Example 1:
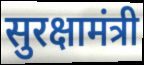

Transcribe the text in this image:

सुरक्षामंत्री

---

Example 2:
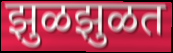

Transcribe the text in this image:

झुळझुळत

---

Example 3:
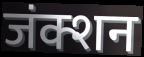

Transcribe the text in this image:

जंक्शन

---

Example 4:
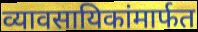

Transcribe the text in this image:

व्यावसायिकांमार्फत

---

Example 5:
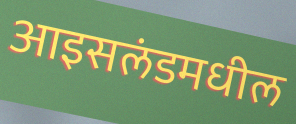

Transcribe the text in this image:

आइसलंडमधील